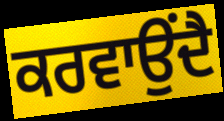
ਕਰਵਾਉਂਦੈ